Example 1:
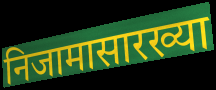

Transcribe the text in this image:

निजामासारख्या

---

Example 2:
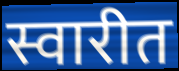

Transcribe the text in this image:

स्वारीत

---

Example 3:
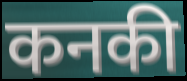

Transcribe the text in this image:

कनकी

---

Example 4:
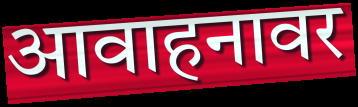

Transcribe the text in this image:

आवाहनावर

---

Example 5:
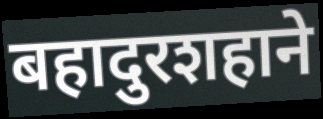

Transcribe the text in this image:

बहादुरशहाने